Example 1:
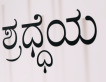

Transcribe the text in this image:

ಶ್ರಧ್ಧೆಯ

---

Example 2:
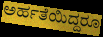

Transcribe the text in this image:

ಅರ್ಹತೆಯಿದ್ದರೂ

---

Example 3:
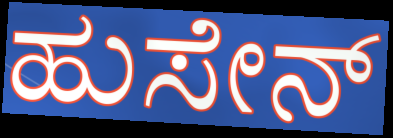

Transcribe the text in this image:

ಹುಸೇನ್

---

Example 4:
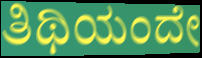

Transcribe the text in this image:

ತಿಥಿಯಂದೇ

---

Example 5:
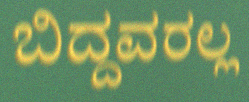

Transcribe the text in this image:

ಬಿದ್ದವರಲ್ಲ